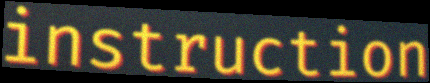
instruction